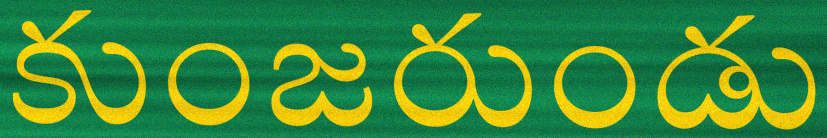
కుంజరుండు